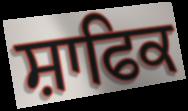
ਸ਼ਾਫਿਕ